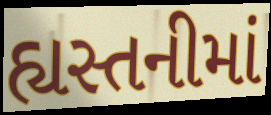
હ્યસ્તનીમાં